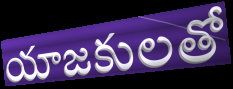
యాజకులతో